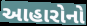
આહારોનો